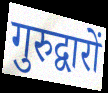
गुरुद्वारों